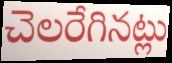
చెలరేగినట్లు